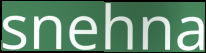
snehna